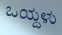
ಒಯ್ದಳು